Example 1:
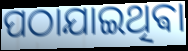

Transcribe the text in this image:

ପଠାଯାଇଥିଵା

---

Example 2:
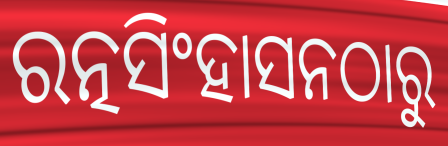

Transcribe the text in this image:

ରତ୍ନସିଂହାସନଠାରୁ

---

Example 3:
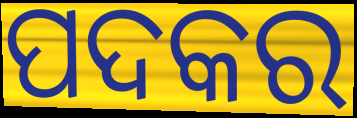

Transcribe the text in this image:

ପଦକର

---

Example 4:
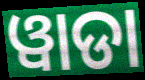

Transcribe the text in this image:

ୱାଡା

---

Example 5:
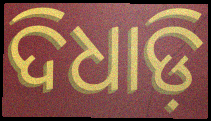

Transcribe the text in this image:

ଦିଧାଡ଼ି